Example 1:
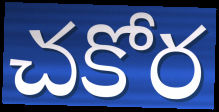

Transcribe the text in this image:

చకోర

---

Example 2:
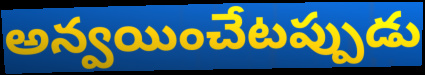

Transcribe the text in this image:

అన్వయించేటప్పుడు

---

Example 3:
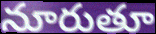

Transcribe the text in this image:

నూరుతూ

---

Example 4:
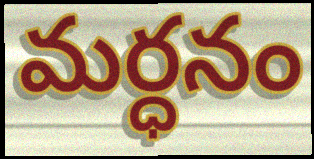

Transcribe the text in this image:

మర్ధనం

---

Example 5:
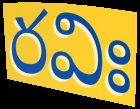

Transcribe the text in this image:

రవిః